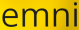
emni